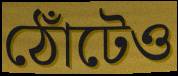
ঠোঁটেও